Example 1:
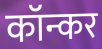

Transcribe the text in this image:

कॉन्कर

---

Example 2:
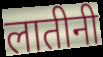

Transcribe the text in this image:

लातीनी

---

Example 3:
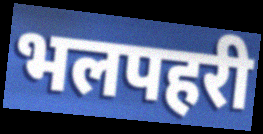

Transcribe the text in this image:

भलपहरी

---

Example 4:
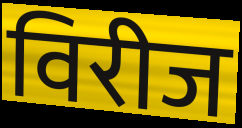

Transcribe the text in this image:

विरीज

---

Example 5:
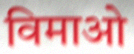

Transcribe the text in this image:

विमाओ